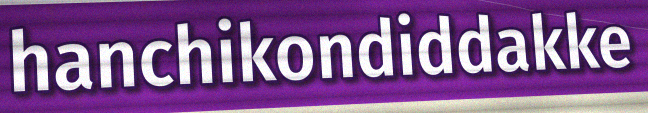
hanchikondiddakke